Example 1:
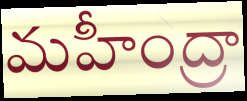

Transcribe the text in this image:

మహీంద్రా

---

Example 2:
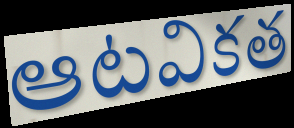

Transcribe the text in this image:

ఆటవికత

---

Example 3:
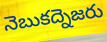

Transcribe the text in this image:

నెబుకద్నెజరు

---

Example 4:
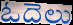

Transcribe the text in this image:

ఓదెలు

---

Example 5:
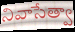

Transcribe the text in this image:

నివాసేత్వా